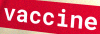
vaccine